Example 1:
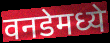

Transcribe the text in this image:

वनडेमध्ये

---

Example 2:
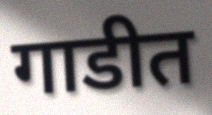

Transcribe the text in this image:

गाडीत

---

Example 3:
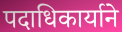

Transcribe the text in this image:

पदाधिकार्याने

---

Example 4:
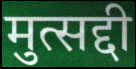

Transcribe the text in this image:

मुत्सद्दी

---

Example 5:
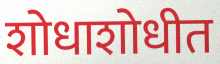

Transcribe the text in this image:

शोधाशोधीत